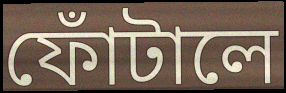
ফোঁটালে